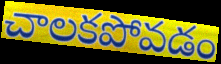
చాలకపోవడం